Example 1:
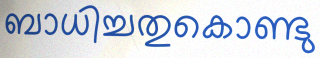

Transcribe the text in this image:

ബാധിച്ചതുകൊണ്ടു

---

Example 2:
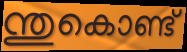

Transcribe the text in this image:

ന്തുകൊണ്ട്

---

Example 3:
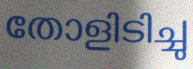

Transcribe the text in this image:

തോളിടിച്ചു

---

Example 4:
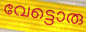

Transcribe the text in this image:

വേട്ടൊരു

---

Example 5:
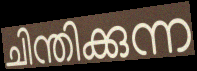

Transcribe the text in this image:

ചിന്തിക്കുന്ന